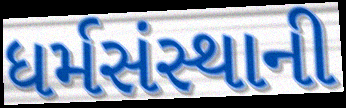
ધર્મસંસ્થાની